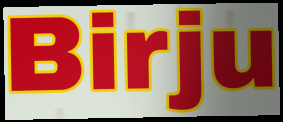
Birju